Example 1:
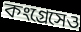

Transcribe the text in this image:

কংগ্রেসেও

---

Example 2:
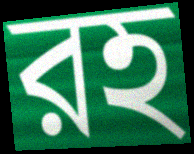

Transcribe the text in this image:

রহ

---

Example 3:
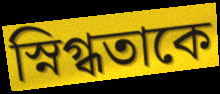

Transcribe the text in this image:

স্নিগ্ধতাকে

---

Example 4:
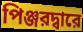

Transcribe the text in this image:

পিঞ্জরদ্বারে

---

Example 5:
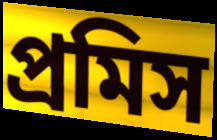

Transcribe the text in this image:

প্রমিস